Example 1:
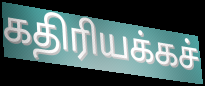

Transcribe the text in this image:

கதிரியக்கச்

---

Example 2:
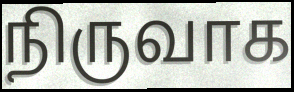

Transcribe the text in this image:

நிருவாக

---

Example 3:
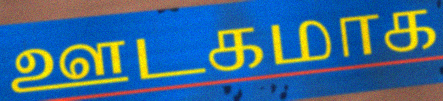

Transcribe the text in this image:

ஊடகமாக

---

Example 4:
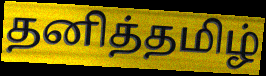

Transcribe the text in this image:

தனித்தமிழ்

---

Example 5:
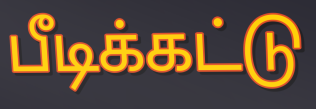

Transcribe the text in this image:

பீடிக்கட்டு